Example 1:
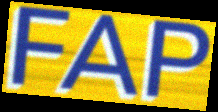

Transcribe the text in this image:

FAP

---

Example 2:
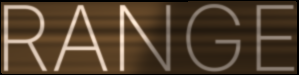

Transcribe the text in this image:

RANGE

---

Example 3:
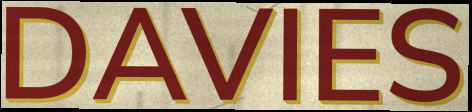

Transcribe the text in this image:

DAVIES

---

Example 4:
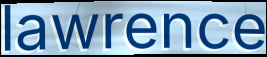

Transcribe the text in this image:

lawrence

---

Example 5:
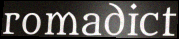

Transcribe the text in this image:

romadict